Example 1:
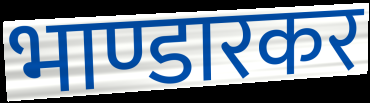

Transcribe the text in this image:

भाण्डारकर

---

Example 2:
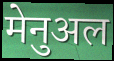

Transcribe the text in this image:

मेनुअल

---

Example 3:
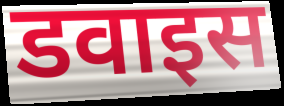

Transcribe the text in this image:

डवाइस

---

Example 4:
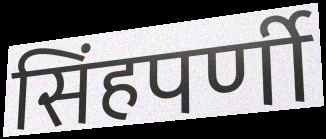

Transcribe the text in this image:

सिंहपर्णी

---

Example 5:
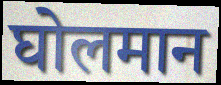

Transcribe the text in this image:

घोलमान